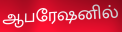
ஆபரேஷனில்